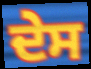
ਦੇਸ